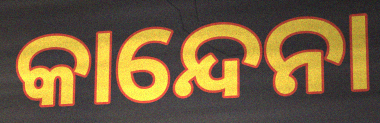
କାନ୍ଦେନା